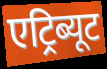
एट्रिब्यूट